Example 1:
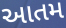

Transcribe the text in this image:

આતમ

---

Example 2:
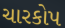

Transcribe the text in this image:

ચારકોપ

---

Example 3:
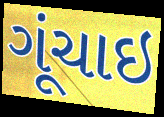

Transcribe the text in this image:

ગૂંચાઇ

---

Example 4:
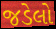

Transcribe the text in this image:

જડેલો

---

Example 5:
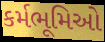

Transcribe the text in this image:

કર્મભૂમિઓ